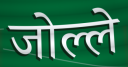
जोल्ले